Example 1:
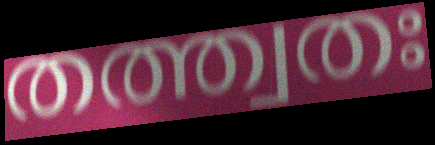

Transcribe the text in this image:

തത്ത്വതഃ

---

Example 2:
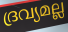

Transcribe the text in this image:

ദ്രവ്യമല്ല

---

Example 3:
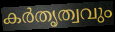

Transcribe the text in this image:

കർതൃത്വവും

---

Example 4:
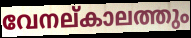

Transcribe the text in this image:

വേനല്കാലത്തും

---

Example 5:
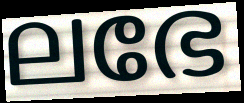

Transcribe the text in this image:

ലഭേ